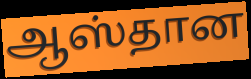
ஆஸ்தான